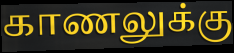
காணலுக்கு